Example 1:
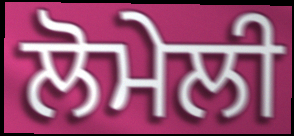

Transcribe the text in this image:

ਲੋਮੇਲੀ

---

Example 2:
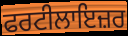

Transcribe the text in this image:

ਫਰਟੀਲਾਇਜ਼ਰ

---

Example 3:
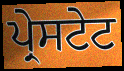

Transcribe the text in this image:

ਪ੍ਰੇਸਟੇਟ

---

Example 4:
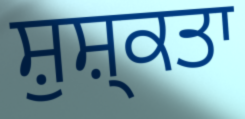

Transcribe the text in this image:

ਸ਼ੁਸ਼੍ਕਤਾ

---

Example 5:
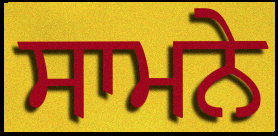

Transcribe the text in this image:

ਸਾਮਨੇ